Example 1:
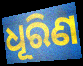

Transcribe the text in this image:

ଧୂରିଣ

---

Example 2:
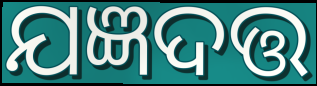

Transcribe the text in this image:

ଯଜ୍ଞଦତ୍ତ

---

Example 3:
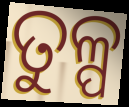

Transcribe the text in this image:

ତୁଳ୍ପ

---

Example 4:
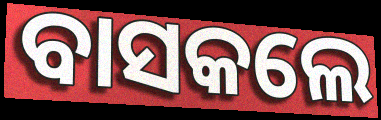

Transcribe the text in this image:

ବାସକଲେ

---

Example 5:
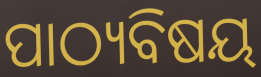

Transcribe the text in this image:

ପାଠ୍ୟବିଷୟ